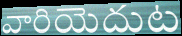
వారియెదుట